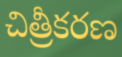
చిత్రీకరణ